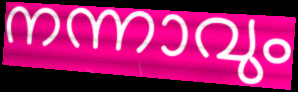
നന്നാവും